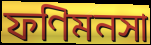
ফণিমনসা